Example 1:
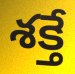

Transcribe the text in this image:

శక్తే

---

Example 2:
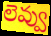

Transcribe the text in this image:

లెవ్వు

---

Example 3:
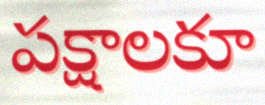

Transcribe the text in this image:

పక్షాలకూ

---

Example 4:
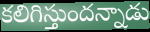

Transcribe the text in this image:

కలిగిస్తుందన్నాడు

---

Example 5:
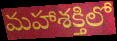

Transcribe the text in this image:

మహాశక్తిలో